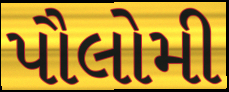
પૌલોમી